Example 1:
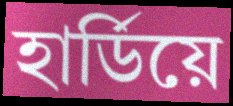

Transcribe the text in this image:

হাৰ্ডিয়ে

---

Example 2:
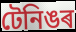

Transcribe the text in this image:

টেনিঙৰ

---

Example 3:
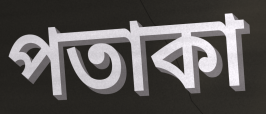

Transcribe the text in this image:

পতাকা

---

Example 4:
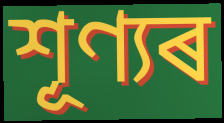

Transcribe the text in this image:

শূণ্যৰ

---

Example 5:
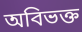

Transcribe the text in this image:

অবিভক্ত